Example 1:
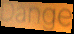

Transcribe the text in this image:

Dange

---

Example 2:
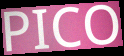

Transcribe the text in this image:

PICO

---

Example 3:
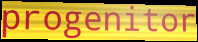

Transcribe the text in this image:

progenitor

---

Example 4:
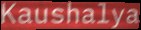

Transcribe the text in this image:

Kaushalya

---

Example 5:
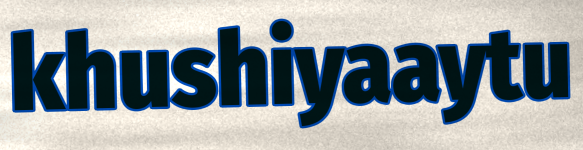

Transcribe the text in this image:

khushiyaaytu